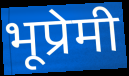
भूप्रेमी